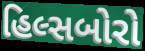
હિલ્સબોરો